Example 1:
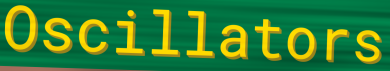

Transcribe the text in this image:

Oscillators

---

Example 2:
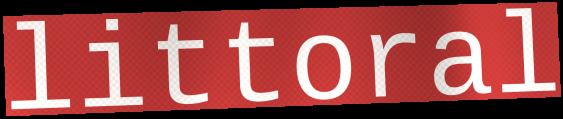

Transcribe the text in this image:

littoral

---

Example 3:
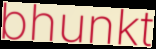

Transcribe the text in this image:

bhunkt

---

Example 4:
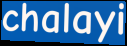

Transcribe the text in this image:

chalayi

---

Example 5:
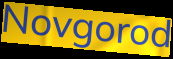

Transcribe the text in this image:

Novgorod